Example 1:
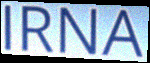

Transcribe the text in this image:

IRNA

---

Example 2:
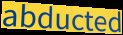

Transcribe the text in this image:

abducted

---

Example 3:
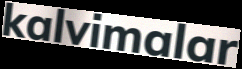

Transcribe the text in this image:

kalvimalar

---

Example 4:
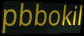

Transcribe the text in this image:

pbbokil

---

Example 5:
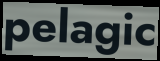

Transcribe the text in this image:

pelagic